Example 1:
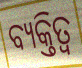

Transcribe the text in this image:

ବ୍ୟକ୍ତିତ୍ଵ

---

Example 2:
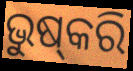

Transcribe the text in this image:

ଭୁଷ୍‌କରି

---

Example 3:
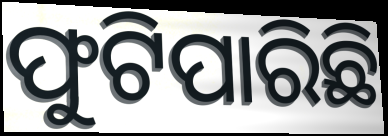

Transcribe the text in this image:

ଫୁଟିପାରିଛି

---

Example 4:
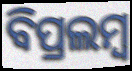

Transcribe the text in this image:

ବିପ୍ରଲମ୍ବ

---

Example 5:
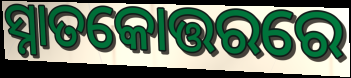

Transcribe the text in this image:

ସ୍ନାତକୋତ୍ତରରେ